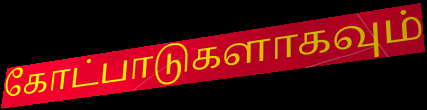
கோட்பாடுகளாகவும்